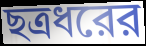
ছত্রধরের